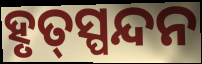
ହୃତ୍‍ସ୍ପନ୍ଦନ